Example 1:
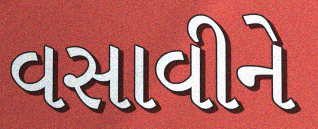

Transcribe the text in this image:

વસાવીને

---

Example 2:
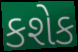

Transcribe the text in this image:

કશેક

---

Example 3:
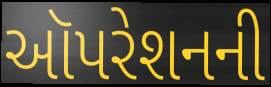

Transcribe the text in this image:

ઑપરેશનની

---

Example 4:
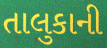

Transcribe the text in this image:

તાલુકાની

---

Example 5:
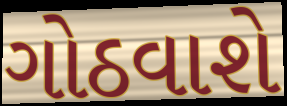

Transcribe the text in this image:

ગોઠવાશે